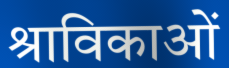
श्राविकाओं